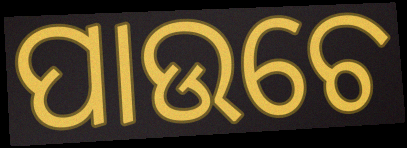
ପାଉଚେ